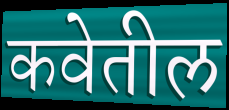
कवेतील